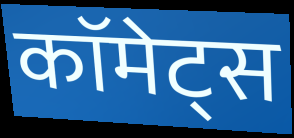
कॉमेट्स